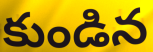
కుండిన